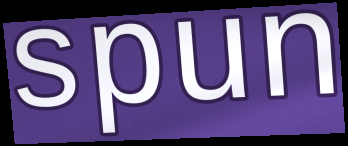
spun